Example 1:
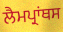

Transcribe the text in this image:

ਲੈਮਪ੍ਰਾਂਥਸ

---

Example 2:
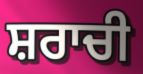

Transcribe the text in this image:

ਸ਼ਰਾਚੀ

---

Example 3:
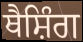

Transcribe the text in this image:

ਥੈਸ਼ਿੰਗ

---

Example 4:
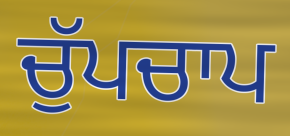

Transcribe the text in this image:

ਚੁੱਪਚਾਪ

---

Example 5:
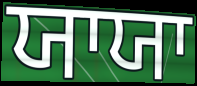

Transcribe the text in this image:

ਯਾਯਾ